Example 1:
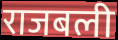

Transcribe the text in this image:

राजबली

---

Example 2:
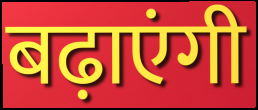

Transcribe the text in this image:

बढ़ाएंगी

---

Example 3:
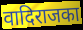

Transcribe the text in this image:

वादिराजका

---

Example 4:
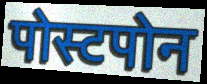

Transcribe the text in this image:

पोस्टपोन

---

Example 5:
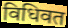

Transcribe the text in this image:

विधिवत